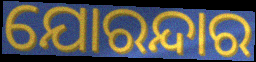
ଯୋରନ୍ଦାର